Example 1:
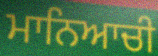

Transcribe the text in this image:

ਮਾਨਿਆਚੀ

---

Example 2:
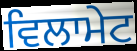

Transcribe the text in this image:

ਵਿਲਾਮੇਟ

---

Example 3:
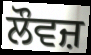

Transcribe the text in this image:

ਲੌਵਜ਼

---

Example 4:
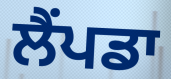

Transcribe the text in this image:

ਲੈਂਪਡਾ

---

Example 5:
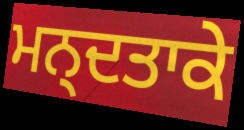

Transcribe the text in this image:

ਮਨ੍ਦਤਾਕੇ